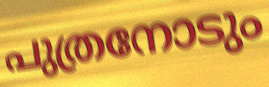
പുത്രനോടും